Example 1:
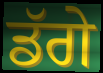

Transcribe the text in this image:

ਡੱਗੇ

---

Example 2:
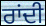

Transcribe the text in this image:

ਰਾਂਦੀ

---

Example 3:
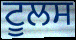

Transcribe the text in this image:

ਟੂਲਸ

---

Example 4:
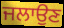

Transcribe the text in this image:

ਜਲਾਉਣ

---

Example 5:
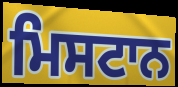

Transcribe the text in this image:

ਮਿਸਟਾਨ